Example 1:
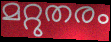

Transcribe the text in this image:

മറ്റുതരം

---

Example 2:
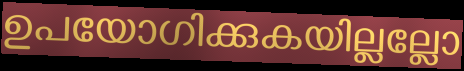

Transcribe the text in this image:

ഉപയോഗിക്കുകയില്ലല്ലോ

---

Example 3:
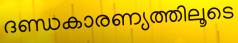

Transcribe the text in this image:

ദണ്ഡകാരണ്യത്തിലൂടെ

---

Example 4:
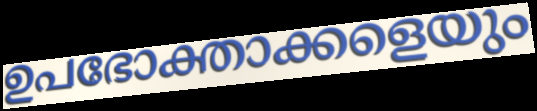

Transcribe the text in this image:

ഉപഭോക്താക്കളെയും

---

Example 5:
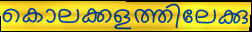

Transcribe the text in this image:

കൊലക്കളത്തിലേക്കു